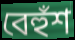
বেহুঁশ